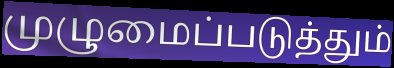
முழுமைப்படுத்தும்